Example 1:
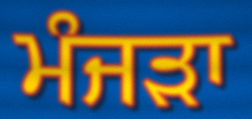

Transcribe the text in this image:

ਮੰਜੜਾ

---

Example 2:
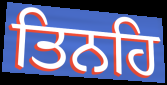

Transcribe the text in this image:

ਤਿਨਹਿ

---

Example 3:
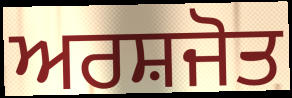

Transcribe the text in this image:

ਅਰਸ਼ਜੋਤ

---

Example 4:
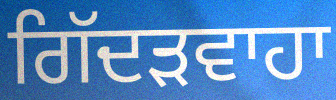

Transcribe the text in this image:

ਗਿੱਦੜਵਾਹਾ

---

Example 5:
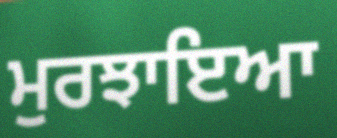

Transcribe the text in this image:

ਮੁਰਝਾਇਆ